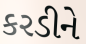
કરડીને